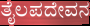
ತೈಲಪದೇವನ